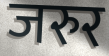
जरुर